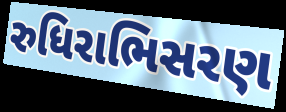
રુધિરાભિસરણ